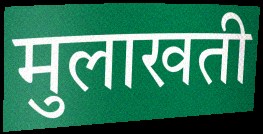
मुलाखती